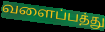
வளைப்பத்து